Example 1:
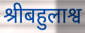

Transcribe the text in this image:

श्रीबहुलाश्व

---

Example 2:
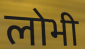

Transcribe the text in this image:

लोभी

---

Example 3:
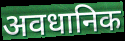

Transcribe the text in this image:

अवधानिक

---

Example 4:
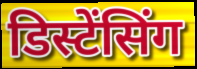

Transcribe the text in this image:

डिस्टेंसिंग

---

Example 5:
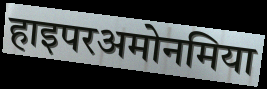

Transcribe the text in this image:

हाइपरअमोनमिया